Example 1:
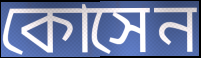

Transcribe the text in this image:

কোসেন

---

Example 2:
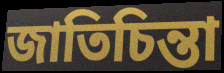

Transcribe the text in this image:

জাতিচিন্তা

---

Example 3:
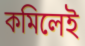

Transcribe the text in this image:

কমিলেই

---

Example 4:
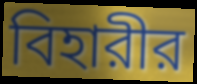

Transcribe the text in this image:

বিহারীর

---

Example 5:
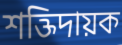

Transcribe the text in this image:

শক্তিদায়ক